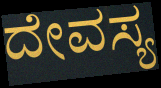
ದೇವಸ್ಯ